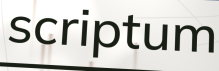
scriptum